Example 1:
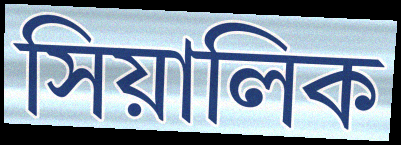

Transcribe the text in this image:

সিয়ালিক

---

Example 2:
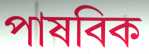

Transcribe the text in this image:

পাষবিক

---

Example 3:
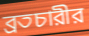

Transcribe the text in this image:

ব্রতচারীর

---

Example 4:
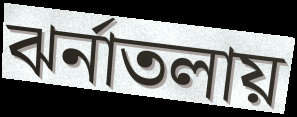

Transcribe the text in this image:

ঝর্নাতলায়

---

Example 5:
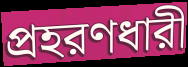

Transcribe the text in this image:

প্রহরণধারী